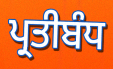
ਪ੍ਰਤੀਬੰਧ